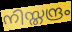
നിസ്തന്ദ്രം